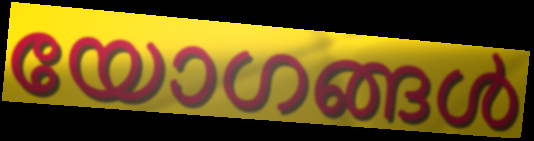
യോഗങ്ങൾ